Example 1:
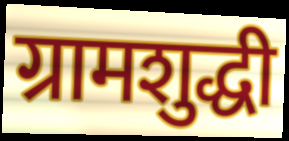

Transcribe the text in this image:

ग्रामशुद्धी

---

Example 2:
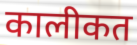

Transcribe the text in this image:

कालीकत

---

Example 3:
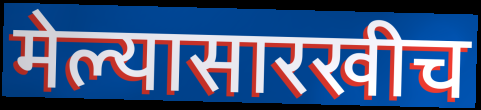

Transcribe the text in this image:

मेल्यासारखीच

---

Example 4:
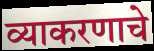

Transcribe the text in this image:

व्याकरणाचे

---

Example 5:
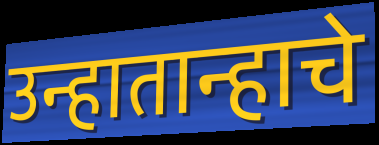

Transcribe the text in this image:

उन्हातान्हाचे